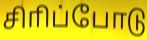
சிரிப்போடு